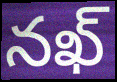
నఖ్